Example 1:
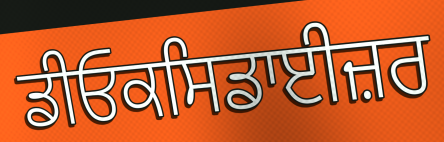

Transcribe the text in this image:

ਡੀਓਕਸਿਡਾਈਜ਼ਰ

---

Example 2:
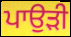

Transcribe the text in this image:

ਪਾਉੜੀ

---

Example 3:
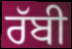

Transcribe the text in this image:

ਰੱਬੀ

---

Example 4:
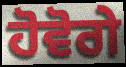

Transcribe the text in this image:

ਹੋਵੋਗੇ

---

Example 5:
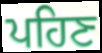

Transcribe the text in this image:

ਪਹਿਣ